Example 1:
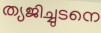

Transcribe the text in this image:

ത്യജിച്ചുടനെ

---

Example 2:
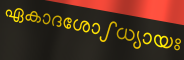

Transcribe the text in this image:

ഏകാദശോഽധ്യായഃ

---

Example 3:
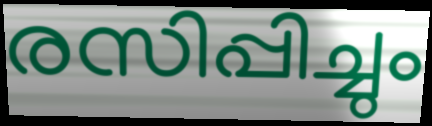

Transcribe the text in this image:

രസിപ്പിച്ചും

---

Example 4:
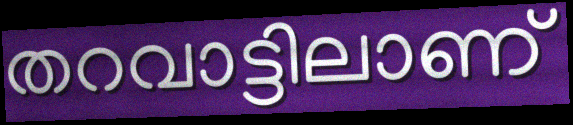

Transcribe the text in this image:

തറവാട്ടിലാണ്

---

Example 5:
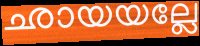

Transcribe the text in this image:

ഛായയല്ലേ